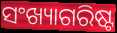
ସଂଖ୍ୟାଗରିଷ୍ଟ